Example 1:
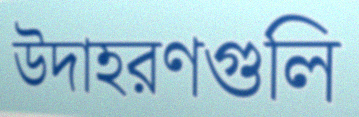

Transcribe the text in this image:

উদাহরণগুলি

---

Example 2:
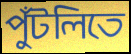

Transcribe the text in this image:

পুঁটলিতে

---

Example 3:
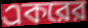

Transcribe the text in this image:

একরের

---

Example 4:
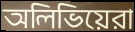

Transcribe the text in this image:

অলিভিয়েরা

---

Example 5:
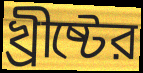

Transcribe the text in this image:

খ্রীষ্টের